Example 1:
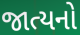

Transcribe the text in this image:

જાત્યનો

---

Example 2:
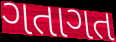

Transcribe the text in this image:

ગતાગત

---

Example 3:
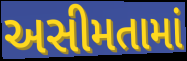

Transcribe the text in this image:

અસીમતામાં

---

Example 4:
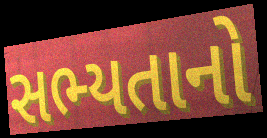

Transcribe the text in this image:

સભ્યતાનો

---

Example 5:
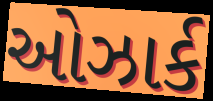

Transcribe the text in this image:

ઓઝાર્ક